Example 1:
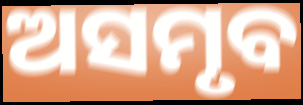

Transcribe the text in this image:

ଅସମୃବ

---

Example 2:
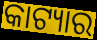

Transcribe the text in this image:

କାଟ୍ୟାର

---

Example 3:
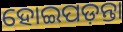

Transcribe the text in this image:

ହୋଇପଡ଼ନ୍ତା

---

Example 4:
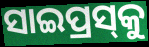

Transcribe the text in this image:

ସାଇପ୍ରସ୍‌କୁ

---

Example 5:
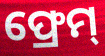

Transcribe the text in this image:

ଫ୍ରେମ୍